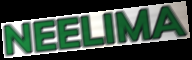
NEELIMA